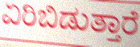
ಏರಿಬಿಡುತ್ತಾರೆ